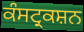
ਕੰਸਟ੍ਰਕਸ਼ਨ